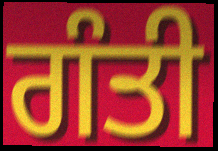
ਗੰਤੀ